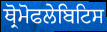
ਥ੍ਰੋਮੋਫਲੇਬਿਟਿਸ